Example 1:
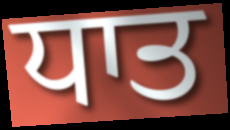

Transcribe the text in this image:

ਧਾਤ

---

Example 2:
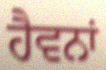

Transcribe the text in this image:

ਹੈਵਨਾਂ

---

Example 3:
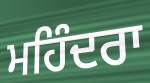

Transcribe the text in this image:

ਮਹਿੰਦਰਾ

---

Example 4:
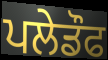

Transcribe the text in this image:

ਪਲੇਡੌਫ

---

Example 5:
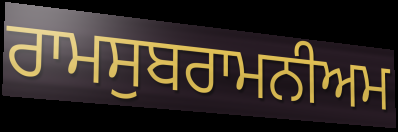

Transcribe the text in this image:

ਰਾਮਸੁਬਰਾਮਨੀਅਮ